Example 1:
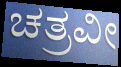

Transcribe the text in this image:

ಚತ್ರವೀ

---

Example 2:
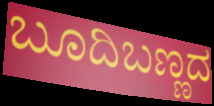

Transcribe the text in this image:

ಬೂದಿಬಣ್ಣದ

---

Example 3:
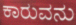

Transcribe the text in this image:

ಕಾರುವನು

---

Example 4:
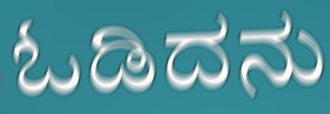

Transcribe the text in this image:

ಓಡಿದನು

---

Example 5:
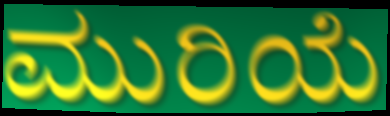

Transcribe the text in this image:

ಮುರಿಯೆ